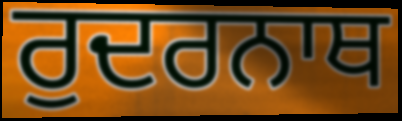
ਰੁਦਰਨਾਥ